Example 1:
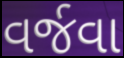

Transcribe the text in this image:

વર્જવા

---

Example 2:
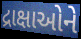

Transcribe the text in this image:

દ્રાક્ષાઓને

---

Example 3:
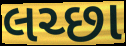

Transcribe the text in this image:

લચ્છા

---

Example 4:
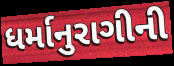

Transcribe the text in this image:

ધર્માનુરાગીની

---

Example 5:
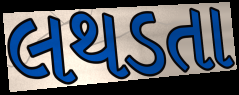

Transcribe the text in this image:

લથડતા